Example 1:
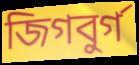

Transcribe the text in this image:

জিগবুর্গ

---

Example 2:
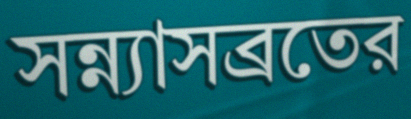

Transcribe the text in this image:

সন্ন্যাসব্রতের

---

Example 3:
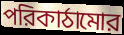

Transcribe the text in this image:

পরিকাঠামোর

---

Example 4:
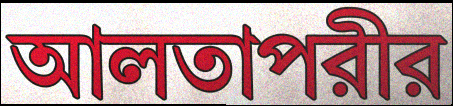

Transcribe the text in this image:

আলতাপরীর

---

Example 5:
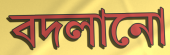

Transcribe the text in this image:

বদলানো